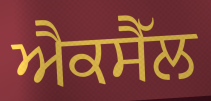
ਐਕਸੈੱਲ